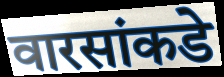
वारसांकडे